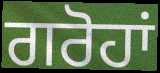
ਗਰੋਹਾਂ